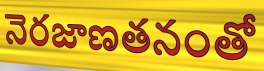
నెరజాణతనంతో